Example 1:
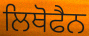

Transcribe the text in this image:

ਲਿਥੋਫੈਨ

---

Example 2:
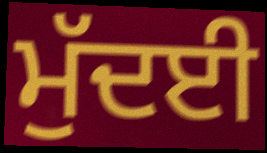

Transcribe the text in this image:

ਮੁੱਦਈ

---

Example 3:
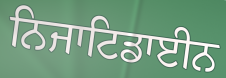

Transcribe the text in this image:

ਨਿਜਾਟਿਡਾਈਨ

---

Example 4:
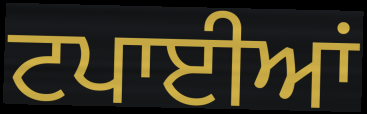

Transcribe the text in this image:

ਟਪਾਈਆਂ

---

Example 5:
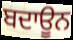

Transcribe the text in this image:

ਬਦਾਊਨ